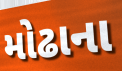
મોઢાના